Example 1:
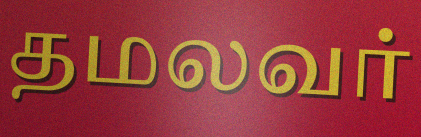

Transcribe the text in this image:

தமலவர்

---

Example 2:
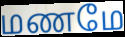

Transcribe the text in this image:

மணமே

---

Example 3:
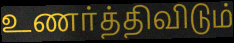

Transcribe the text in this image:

உணர்த்திவிடும்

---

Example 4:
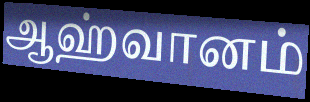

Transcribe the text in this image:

ஆஹ்வானம்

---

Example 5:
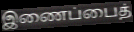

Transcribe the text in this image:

இணைப்பைத்